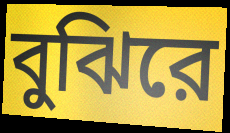
বুঝিরে